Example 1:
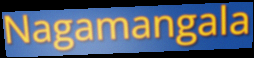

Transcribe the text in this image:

Nagamangala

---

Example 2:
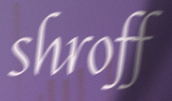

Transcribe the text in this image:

shroff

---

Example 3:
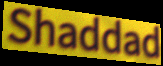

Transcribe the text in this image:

Shaddad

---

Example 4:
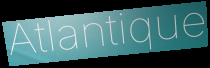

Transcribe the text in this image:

Atlantique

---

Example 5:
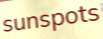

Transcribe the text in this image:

sunspots